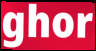
ghor